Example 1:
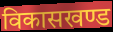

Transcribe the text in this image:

विकासखण्‍ड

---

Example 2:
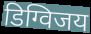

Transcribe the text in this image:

डिग्विजय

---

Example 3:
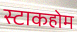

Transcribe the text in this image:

स्टाकहोम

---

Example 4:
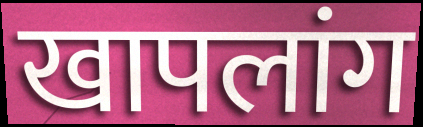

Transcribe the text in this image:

खापलांग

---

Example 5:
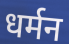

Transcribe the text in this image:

धर्मन